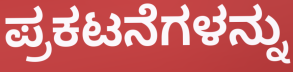
ಪ್ರಕಟನೆಗಳನ್ನು